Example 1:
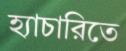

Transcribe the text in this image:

হ্যাচারিতে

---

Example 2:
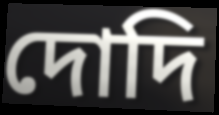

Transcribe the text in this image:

দোদি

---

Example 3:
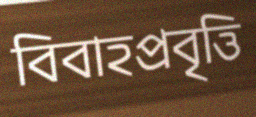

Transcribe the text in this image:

বিবাহপ্রবৃত্তি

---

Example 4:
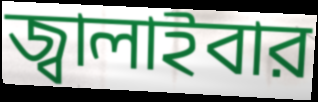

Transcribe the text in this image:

জ্বালাইবার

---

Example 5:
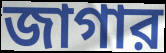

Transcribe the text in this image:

জাগার